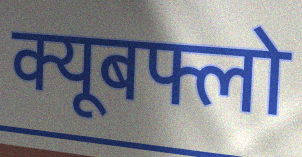
क्यूबफ्लो